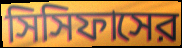
সিসিফাসের